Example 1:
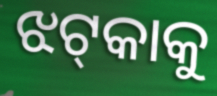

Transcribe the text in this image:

ଝଟ୍‌କାକୁ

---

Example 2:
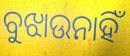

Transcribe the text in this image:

ବୁଝାଉନାହିଁ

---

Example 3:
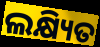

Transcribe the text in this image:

ଲକ୍ଷ୍ୟିତ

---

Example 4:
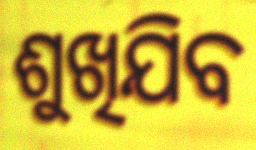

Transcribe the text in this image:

ଶୁଖିଯିବ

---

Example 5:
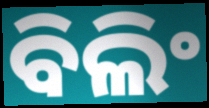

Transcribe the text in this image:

ବିଲିଂ